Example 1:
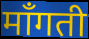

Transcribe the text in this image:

माँगती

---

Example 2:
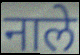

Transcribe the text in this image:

नाले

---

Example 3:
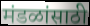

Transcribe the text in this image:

मंडळांसाठी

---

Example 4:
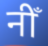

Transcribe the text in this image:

नीँ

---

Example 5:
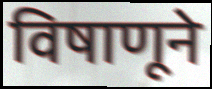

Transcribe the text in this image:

विषाणूने